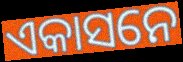
ଏକାସନେ